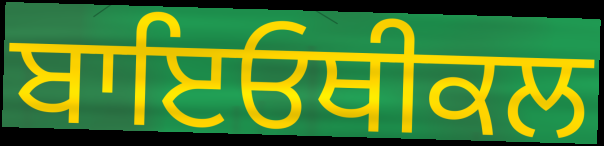
ਬਾਇਓਥੀਕਲ